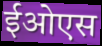
ईओएस